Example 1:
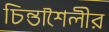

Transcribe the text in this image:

চিন্তাশৈলীর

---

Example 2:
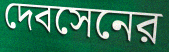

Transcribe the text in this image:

দেবসেনের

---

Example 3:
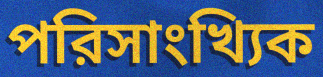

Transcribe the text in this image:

পরিসাংখ্যিক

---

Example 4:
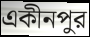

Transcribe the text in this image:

একীনপুর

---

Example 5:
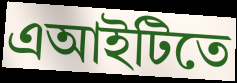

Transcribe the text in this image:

এআইটিতে